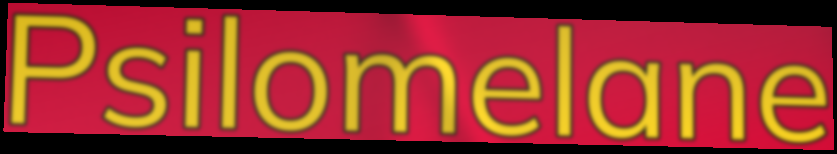
Psilomelane